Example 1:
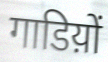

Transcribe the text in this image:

गाडिय़ों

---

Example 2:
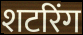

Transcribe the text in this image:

शटरिंग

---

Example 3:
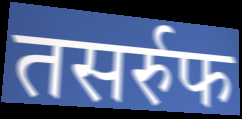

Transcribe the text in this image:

तसर्रुफ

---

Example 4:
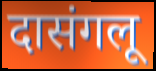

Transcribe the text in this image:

दासंगलू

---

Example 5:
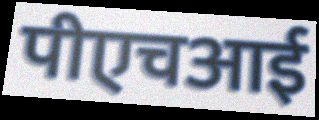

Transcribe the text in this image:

पीएचआई